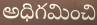
అధిగమించి